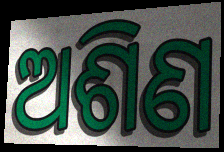
ଅଶିଣ